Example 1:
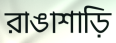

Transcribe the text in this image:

রাঙাশাড়ি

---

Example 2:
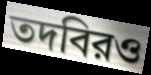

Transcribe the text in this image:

তদবিরও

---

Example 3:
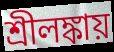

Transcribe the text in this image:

শ্রীলঙ্কায়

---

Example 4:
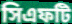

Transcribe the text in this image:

সিএফটি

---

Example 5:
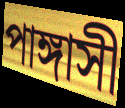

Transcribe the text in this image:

পাঙ্গাসী